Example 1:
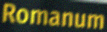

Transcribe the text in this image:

Romanum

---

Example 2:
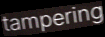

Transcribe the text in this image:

tampering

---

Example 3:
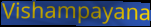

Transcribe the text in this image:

Vishampayana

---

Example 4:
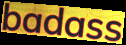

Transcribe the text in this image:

badass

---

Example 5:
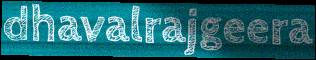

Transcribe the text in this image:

dhavalrajgeera